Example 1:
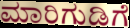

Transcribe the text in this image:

ಮಾರಿಗುಡಿಗೆ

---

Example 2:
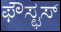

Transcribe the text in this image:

ಫೌಸ್ಟಸ್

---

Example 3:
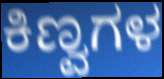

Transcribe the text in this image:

ಕಿಣ್ವಗಳ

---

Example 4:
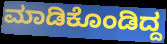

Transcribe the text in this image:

ಮಾಡಿಕೊಂಡಿದ್ದ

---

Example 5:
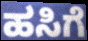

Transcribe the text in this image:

ಹಸಿಗೆ